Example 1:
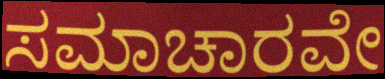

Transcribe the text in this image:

ಸಮಾಚಾರವೇ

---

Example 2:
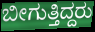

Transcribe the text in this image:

ಬೀಗುತ್ತಿದ್ದರು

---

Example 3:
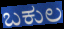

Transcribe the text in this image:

ಬಕುಲ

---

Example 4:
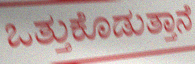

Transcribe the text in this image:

ಒತ್ತುಕೊಡುತ್ತಾನೆ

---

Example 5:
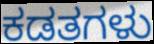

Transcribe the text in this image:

ಕಡತಗಳು